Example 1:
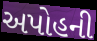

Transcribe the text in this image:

અપોહની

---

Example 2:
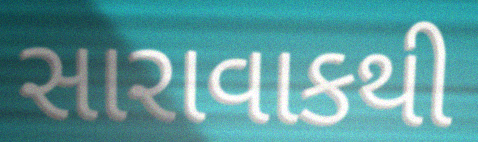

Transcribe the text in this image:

સારાવાકથી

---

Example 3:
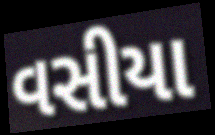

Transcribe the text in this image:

વસીયા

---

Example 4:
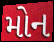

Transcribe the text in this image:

મોન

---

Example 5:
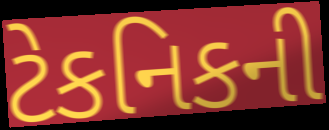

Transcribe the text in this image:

ટેકનિકની